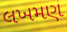
લખમણ